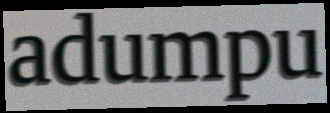
adumpu